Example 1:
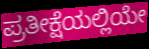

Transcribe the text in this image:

ಪ್ರತೀಕ್ಷೆಯಲ್ಲಿಯೇ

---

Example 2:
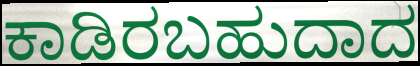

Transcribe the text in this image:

ಕಾಡಿರಬಹುದಾದ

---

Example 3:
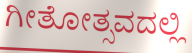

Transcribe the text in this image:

ಗೀತೋತ್ಸವದಲ್ಲಿ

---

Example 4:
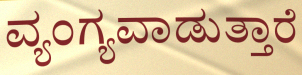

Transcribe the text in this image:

ವ್ಯಂಗ್ಯವಾಡುತ್ತಾರೆ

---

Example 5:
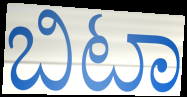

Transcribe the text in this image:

ಬಿಟಾ